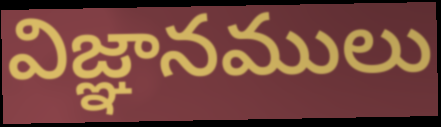
విజ్ఞానములు